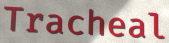
Tracheal